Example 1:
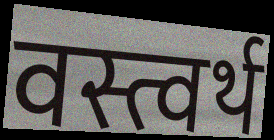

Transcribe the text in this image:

वस्त्वर्थ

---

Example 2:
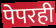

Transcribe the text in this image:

पेपरही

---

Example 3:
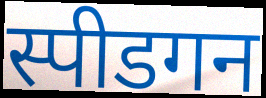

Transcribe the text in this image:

स्पीडगन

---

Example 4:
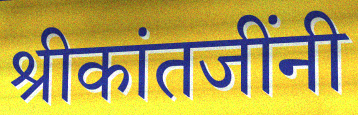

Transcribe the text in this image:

श्रीकांतजींनी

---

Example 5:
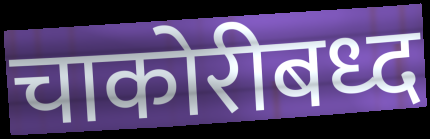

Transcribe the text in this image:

चाकोरीबध्द